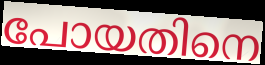
പോയതിനെ